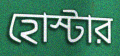
হোস্টার